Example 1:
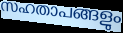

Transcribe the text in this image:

സഹതാപങ്ങളും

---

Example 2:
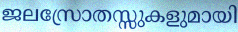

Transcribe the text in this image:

ജലസ്രോതസ്സുകളുമായി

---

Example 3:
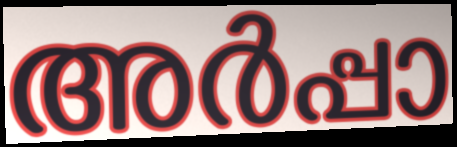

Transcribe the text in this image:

അർപ്പാ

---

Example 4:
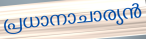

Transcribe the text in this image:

പ്രധാനാചാര്യൻ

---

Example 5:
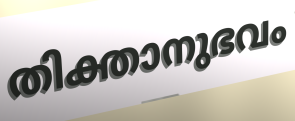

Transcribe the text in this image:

തിക്താനുഭവം